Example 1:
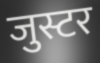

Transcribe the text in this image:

जुस्टर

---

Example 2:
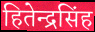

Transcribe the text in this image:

हितेन्द्रसिंह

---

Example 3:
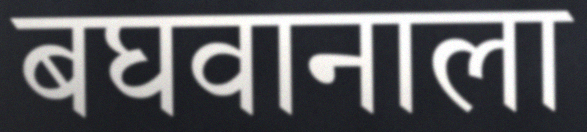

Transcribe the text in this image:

बघवानाला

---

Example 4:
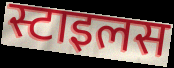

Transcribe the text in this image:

स्टाइलस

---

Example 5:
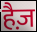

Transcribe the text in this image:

हैज़